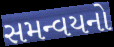
સમન્વયનો